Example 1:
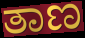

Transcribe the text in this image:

ತಾಣ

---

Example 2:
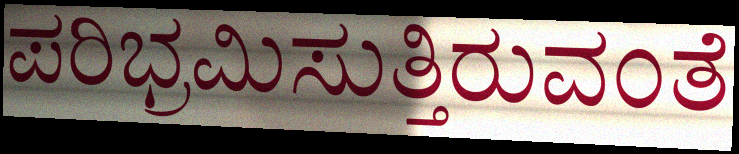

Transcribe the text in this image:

ಪರಿಭ್ರಮಿಸುತ್ತಿರುವಂತೆ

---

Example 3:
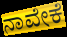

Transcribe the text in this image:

ನಾವೇಕೆ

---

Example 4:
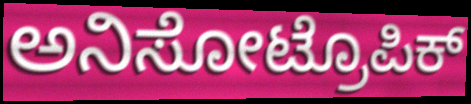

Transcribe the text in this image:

ಅನಿಸೋಟ್ರೊಪಿಕ್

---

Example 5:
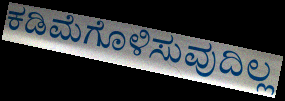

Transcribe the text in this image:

ಕಡಿಮೆಗೊಳಿಸುವುದಿಲ್ಲ